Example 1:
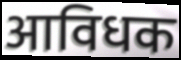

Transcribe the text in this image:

आविधक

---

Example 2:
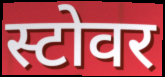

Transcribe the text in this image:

स्टोवर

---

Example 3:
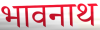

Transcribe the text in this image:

भावनाथ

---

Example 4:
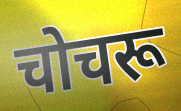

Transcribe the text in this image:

चोचरू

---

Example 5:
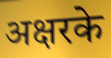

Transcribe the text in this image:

अक्षरके